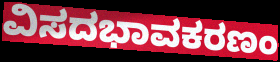
ವಿಸದಭಾವಕರಣಂ